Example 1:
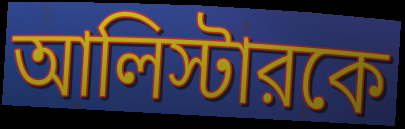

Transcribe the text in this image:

আলিস্টারকে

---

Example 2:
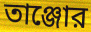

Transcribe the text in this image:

তাঞ্জোর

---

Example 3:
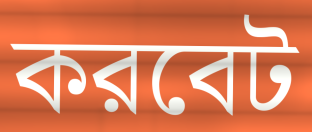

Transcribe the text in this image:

করবেট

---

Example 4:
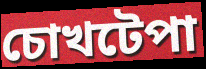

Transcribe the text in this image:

চোখটেপা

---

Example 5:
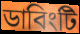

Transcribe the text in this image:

ডাবিংটি